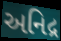
અનિદ્ર